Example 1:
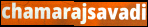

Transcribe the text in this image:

chamarajsavadi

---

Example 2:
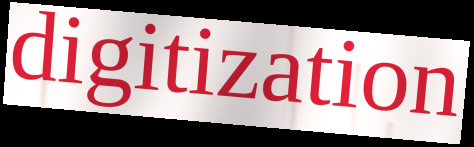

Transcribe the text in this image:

digitization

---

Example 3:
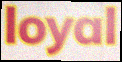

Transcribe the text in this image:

loyal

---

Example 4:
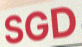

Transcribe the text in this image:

SGD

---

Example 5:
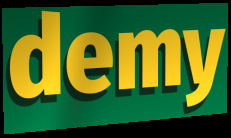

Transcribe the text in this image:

demy